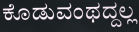
ಕೊಡುವಂಥದ್ದಲ್ಲ